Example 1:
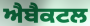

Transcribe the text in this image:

ਐਬੈਕਟਲ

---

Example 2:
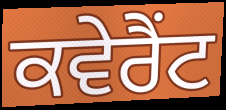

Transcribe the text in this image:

ਕਵੇਰੈਂਟ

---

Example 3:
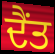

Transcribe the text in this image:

ਦੈਂਤ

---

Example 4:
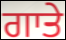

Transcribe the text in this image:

ਗਾਤੇ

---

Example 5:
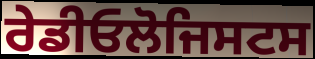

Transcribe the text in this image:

ਰੇਡੀਓਲੋਜਿਸਟਸ